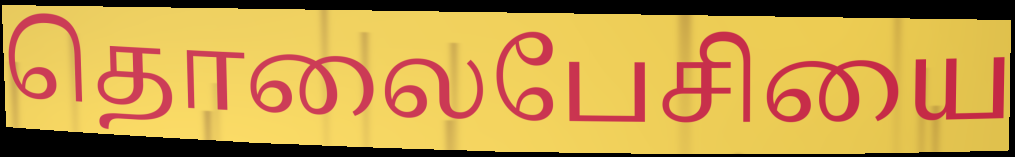
தொலைபேசியை